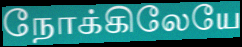
நோக்கிலேயே